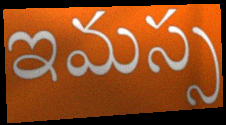
ఇమస్స